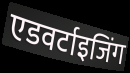
एडवर्टाइजिंग